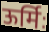
ऊर्मिः